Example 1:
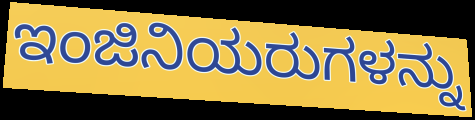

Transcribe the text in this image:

ಇಂಜಿನಿಯರುಗಳನ್ನು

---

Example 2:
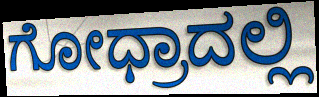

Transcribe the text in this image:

ಗೋಧ್ರಾದಲ್ಲಿ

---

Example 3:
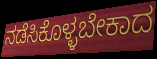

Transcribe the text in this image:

ನಡೆಸಿಕೊಳ್ಳಬೇಕಾದ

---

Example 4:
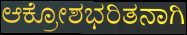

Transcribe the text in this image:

ಆಕ್ರೋಶಭರಿತನಾಗಿ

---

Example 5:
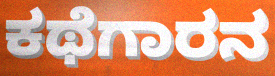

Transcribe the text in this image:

ಕಥೆಗಾರನ